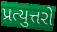
પ્રત્યુત્તરો